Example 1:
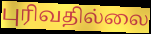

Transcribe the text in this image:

புரிவதில்லை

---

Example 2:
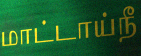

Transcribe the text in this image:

மாட்டாய்நீ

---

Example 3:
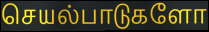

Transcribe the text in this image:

செயல்பாடுகளோ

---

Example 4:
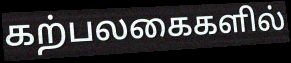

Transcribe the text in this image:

கற்பலகைகளில்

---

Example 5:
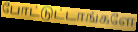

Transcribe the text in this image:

போட்டுட்டாங்களே